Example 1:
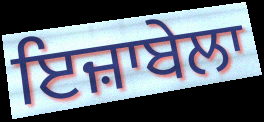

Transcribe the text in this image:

ਇਜ਼ਾਬੇਲਾ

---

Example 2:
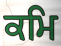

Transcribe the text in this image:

ਕਮਿ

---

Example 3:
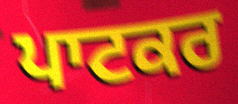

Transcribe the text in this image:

ਪਾਟਕਰ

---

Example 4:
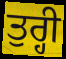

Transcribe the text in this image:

ਤੁਰ੍ਹੀ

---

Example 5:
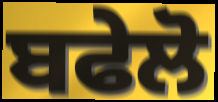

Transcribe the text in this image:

ਬਫੇਲੋ